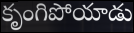
కృంగిపోయాడు